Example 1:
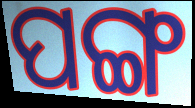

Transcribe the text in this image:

ପଙ୍ଗ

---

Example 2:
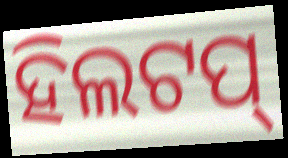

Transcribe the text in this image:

ହିଲଟପ୍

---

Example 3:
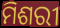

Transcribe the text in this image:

ମିଶରୀ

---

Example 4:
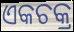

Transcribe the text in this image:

ଏକଚକ୍ର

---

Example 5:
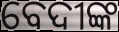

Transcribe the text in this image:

ବେଦୀଙ୍କ